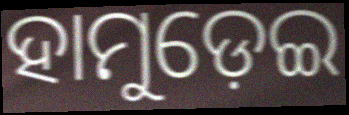
ହାମୁଡ଼େଇ